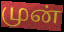
முன்